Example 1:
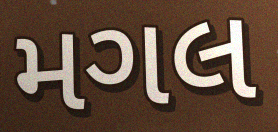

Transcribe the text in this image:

મગલ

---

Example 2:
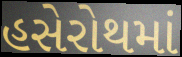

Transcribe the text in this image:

હસેરોથમાં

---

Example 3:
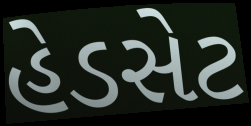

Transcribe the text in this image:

હેડસેટ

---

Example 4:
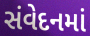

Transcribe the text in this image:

સંવેદનમાં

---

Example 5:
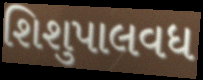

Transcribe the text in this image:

શિશુપાલવધ